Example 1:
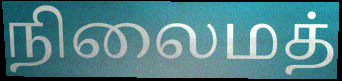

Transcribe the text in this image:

நிலைமத்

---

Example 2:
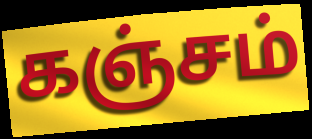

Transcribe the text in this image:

கஞ்சம்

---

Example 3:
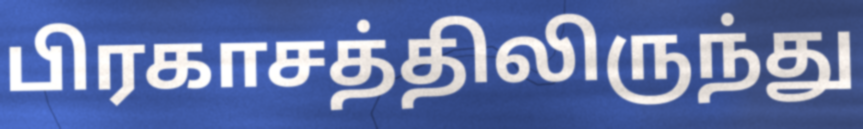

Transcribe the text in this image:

பிரகாசத்திலிருந்து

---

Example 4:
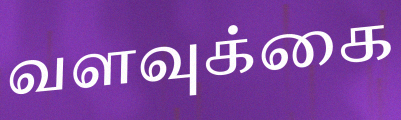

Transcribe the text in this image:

வளவுக்கை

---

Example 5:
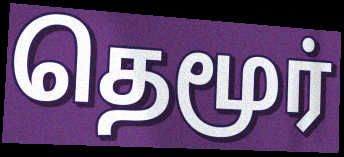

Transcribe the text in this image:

தெமூர்